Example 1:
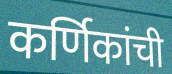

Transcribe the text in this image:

कर्णिकांची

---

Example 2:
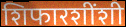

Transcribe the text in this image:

शिफारशींशी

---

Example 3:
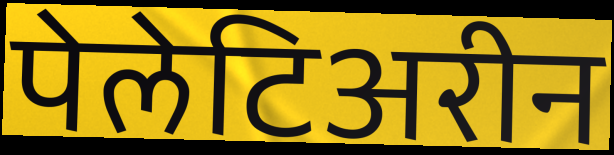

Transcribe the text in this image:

पेलेटिअरीन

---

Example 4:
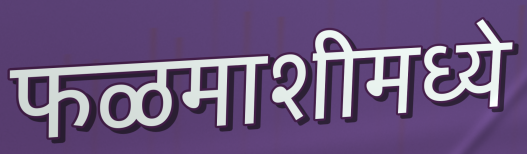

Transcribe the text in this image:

फळमाशीमध्ये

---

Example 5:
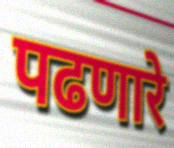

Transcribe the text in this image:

पढणारे